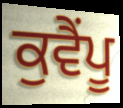
ਕੁਵੈਂਪੂ